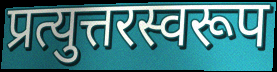
प्रत्युत्तरस्वरूप